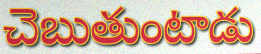
చెబుతుంటాడు